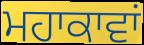
ਮਹਾਕਾਵਾਂ